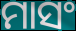
ମାସଂ